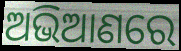
ଅଭିଆଣରେ